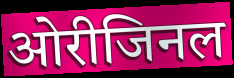
ओरीजिनल